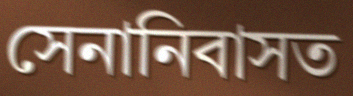
সেনানিবাসত